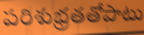
పరిశుభ్రతతోపాటు